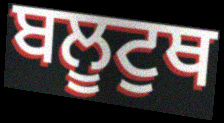
ਬਲੂਟੁਥ